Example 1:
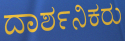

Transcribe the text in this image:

ದಾರ್ಶನಿಕರು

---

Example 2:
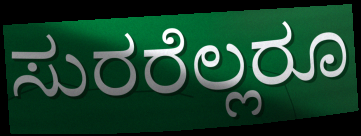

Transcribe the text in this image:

ಸುರರೆಲ್ಲರೂ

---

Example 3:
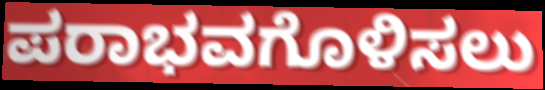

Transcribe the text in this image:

ಪರಾಭವಗೊಳಿಸಲು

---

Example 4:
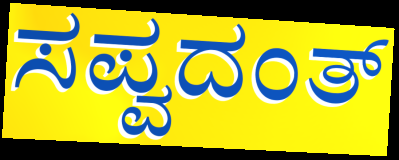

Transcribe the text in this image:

ಸಪ್ವದಂತ್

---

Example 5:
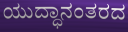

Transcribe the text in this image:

ಯುದ್ಧಾನಂತರದ